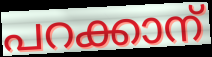
പറക്കാന്